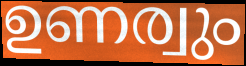
ഉണര്വും